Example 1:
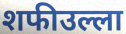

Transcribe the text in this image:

शफीउल्ला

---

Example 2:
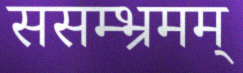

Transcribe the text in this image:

ससम्भ्रमम्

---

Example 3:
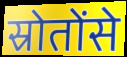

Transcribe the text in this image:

स्रोतोंसे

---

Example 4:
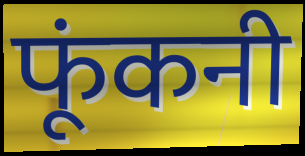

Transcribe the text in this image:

फूंकनी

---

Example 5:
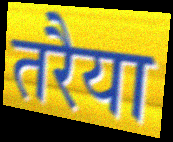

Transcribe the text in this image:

तरैया